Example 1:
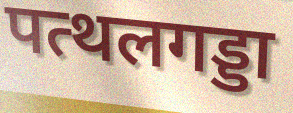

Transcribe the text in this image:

पत्थलगड्डा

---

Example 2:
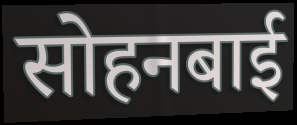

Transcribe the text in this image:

सोहनबाई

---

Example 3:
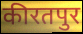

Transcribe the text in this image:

कीरतपुर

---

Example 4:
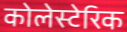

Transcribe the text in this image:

कोलेस्टेरिक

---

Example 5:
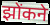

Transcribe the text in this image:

झोंकने